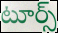
టూర్స్